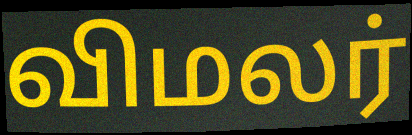
விமலர்